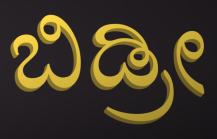
ಬಿಡ್ರೀ